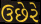
ઉછેરે